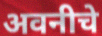
अवनीचे